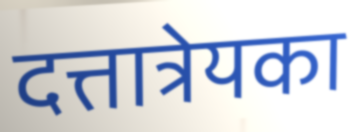
दत्तात्रेयका